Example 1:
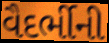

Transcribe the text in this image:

વૈદર્ભીની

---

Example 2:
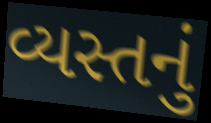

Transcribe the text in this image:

વ્યસ્તનું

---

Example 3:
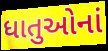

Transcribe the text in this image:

ધાતુઓનાં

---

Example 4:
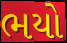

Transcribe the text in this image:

ભયો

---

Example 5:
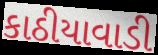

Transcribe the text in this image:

કાઠીયાવાડી